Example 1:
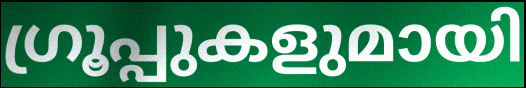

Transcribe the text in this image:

ഗ്രൂപ്പുകളുമായി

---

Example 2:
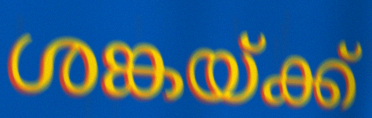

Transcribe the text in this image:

ശങ്കയ്ക്ക്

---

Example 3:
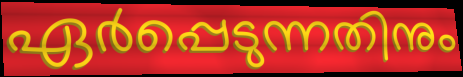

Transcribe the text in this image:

ഏർപ്പെടുന്നതിനും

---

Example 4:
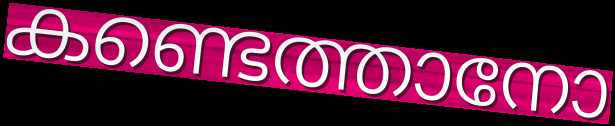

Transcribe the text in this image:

കണ്ടെത്താനോ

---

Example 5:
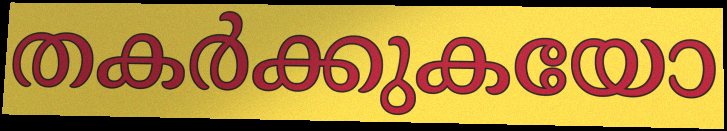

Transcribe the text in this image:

തകർക്കുകയോ